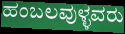
ಹಂಬಲವುಳ್ಳವರು